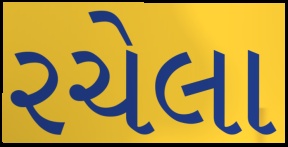
રચેલા